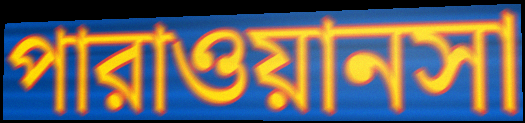
পারাওয়ানসা